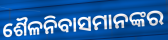
ଶୈଳନିବାସମାନଙ୍କର